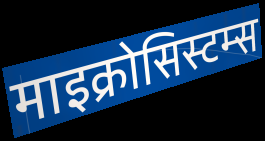
माइक्रोसिस्टम्स